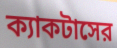
ক্যাকটাসের